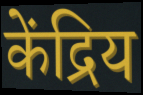
केंद्रिय